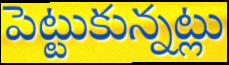
పెట్టుకున్నట్లు